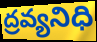
ద్రవ్యనిధి